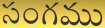
సంగము